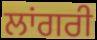
ਲਾਂਗਰੀ